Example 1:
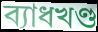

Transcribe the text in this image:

ব্যাধখণ্ড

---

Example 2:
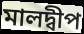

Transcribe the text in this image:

মালদ্বীপ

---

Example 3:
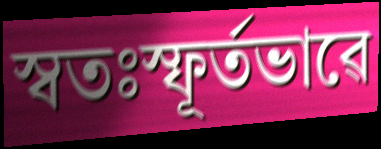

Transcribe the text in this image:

স্বতঃস্ফূৰ্তভাৱে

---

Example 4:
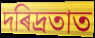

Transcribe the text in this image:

দৰিদ্ৰতাত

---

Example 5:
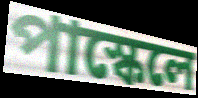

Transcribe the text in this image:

পাস্কেলে